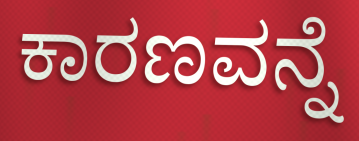
ಕಾರಣವನ್ನೆ